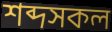
শব্দসকল